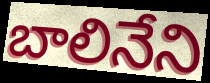
బాలినేని